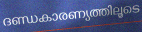
ദണ്ഡകാരണ്യത്തിലൂടെ